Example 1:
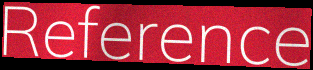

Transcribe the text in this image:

Reference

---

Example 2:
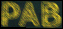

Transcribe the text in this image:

PAB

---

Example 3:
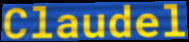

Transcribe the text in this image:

Claudel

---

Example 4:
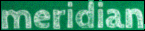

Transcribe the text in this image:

meridian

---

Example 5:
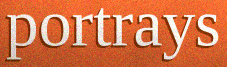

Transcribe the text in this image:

portrays